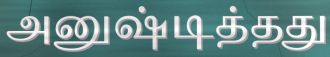
அனுஷ்டித்தது